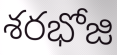
శరభోజి